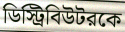
ডিস্ট্রিবিউটরকে